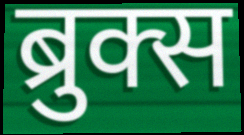
ब्रुक्‍स